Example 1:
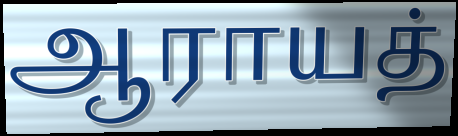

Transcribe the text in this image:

ஆராயத்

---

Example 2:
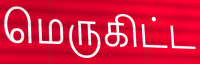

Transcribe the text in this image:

மெருகிட்ட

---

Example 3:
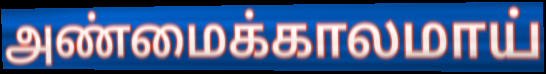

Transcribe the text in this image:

அண்மைக்காலமாய்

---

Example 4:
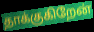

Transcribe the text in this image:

தாக்குகிறேன்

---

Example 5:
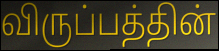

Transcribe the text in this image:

விருப்பத்தின்